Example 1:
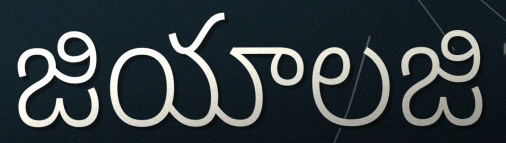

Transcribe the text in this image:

జియాలజి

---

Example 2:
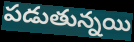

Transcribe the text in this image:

పడుతున్నయి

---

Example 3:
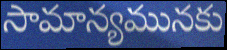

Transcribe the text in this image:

సామాన్యమునకు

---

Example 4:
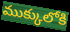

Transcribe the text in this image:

ముక్కులోకి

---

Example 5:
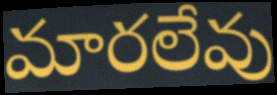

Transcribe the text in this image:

మారలేవు